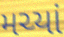
મચ્યાં